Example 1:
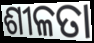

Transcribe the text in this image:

ଶୀଳତା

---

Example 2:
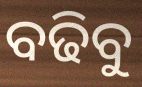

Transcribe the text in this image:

ବଢିବୁ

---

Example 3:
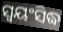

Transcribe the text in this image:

ସ୍ୱୟଂସିଦ୍ଧ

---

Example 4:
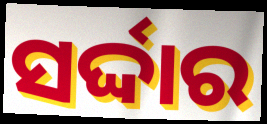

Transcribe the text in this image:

ସର୍ଦ୍ଦାର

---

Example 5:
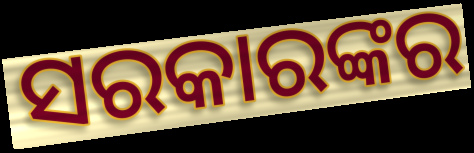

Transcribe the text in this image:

ସରକାରଙ୍କର